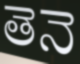
తెనె